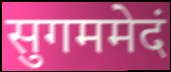
सुगममेदं